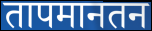
तापमानतन